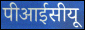
पीआईसीयू